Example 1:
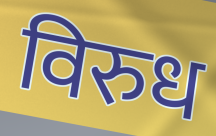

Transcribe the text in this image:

विरुध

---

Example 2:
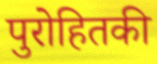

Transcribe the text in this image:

पुरोहितकी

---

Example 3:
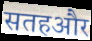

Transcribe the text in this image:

सतहऔर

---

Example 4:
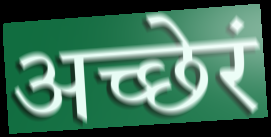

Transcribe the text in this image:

अच्छेरं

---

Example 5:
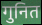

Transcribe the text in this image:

गुनित